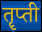
तॄप्ती